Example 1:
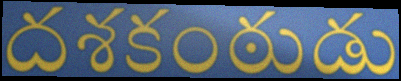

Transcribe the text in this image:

దశకంఠుడు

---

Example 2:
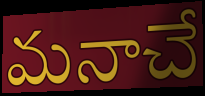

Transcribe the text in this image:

మనాచే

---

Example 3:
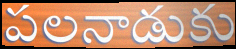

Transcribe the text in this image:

పలనాడుకు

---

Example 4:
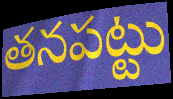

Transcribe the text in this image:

తనపట్టు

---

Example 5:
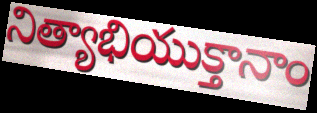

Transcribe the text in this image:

నిత్యాభియుక్తానాం